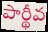
పార్థీవ